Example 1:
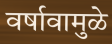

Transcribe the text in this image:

वर्षावामुळे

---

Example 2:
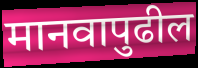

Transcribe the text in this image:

मानवापुढील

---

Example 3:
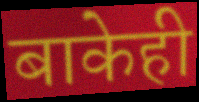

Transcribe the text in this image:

बाकेही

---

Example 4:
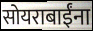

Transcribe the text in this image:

सोयराबाईंना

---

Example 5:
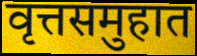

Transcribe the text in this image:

वृत्तसमुहात